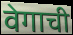
वेगाची